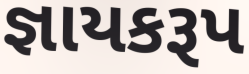
જ્ઞાયકરૂપ